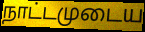
நாட்டமுடைய